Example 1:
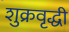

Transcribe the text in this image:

शुक्रवृद्धी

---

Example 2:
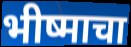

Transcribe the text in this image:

भीष्माचा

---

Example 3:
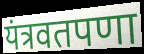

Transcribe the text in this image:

यंत्रवतपणा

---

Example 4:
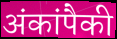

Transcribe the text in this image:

अंकांपैकी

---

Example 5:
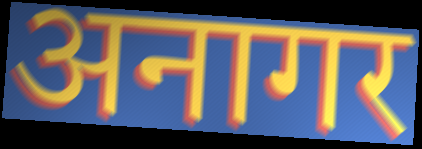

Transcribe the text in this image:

अनागर